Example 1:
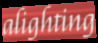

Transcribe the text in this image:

alighting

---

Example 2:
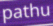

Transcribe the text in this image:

pathu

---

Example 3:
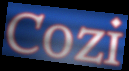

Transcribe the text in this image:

Cozi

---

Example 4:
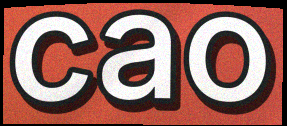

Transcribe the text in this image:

cao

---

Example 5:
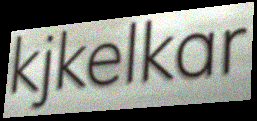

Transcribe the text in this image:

kjkelkar